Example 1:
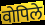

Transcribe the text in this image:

वोपिले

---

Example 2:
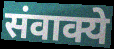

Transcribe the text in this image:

संवाक्ये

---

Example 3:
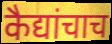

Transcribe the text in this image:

कैद्यांचाच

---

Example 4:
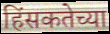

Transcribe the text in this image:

हिंसकतेच्या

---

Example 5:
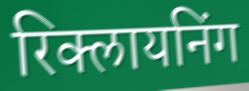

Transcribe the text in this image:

रिक्लायनिंग